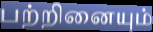
பற்றினையும்